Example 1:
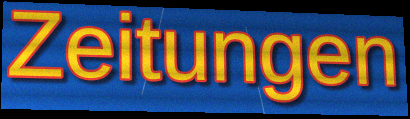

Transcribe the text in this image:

Zeitungen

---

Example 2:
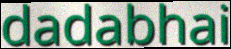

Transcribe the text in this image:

dadabhai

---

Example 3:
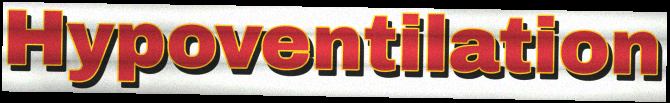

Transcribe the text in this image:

Hypoventilation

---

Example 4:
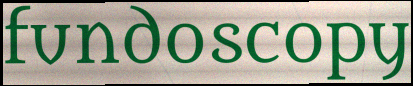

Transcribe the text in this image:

fundoscopy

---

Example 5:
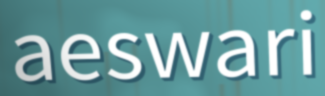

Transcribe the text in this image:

aeswari